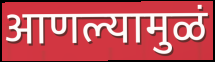
आणल्यामुळं